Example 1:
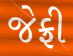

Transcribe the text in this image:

જેફ્રી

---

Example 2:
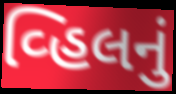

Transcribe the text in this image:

વ્હિલનું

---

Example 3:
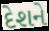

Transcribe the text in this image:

દેશને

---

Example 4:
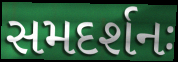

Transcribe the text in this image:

સમદર્શનઃ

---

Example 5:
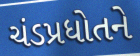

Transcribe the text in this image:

ચંડપ્રધોતને